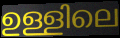
ഉള്ളിലെ